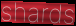
shards